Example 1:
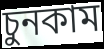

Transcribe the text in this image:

চুনকাম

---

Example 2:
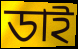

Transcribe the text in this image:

ডাই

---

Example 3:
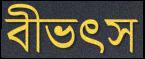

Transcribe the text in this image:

বীভৎস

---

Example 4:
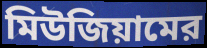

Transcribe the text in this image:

মিউজিয়ামের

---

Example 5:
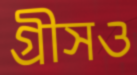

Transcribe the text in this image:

গ্রীসও